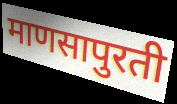
माणसापुरती